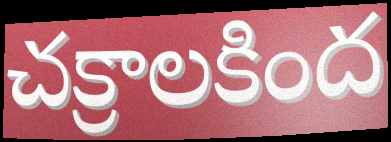
చక్రాలకింద